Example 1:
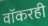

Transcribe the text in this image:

वॉकरही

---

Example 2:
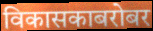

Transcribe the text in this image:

विकासकाबरोबर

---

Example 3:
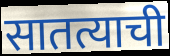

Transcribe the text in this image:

सातत्याची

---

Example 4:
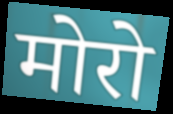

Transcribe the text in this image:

मोरो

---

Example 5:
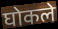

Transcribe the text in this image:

घोकले